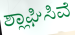
ಶ್ಲಾಘಿಸಿವೆ